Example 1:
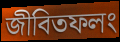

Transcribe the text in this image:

জীবিতফলং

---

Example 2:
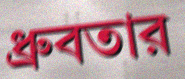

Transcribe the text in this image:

ধ্রুবতার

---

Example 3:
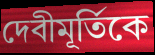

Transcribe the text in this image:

দেবীমূর্তিকে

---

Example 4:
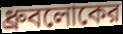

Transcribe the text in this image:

ধ্রুবলোকের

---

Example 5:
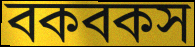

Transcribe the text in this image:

বকবকস